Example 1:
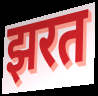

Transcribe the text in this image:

झरत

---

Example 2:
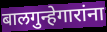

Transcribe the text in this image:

बालगुन्हेगारांना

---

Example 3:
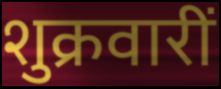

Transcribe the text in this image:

शुक्रवारीं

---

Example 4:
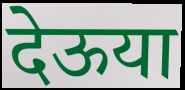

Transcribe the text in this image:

देऊया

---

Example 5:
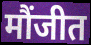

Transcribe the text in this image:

मौंजीत